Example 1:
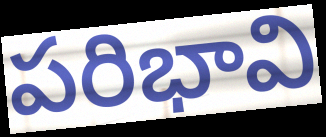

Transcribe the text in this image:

పరిభావి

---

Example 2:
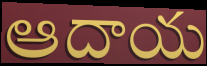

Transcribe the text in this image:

ఆదాయ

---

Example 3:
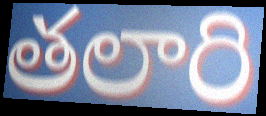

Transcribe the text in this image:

తలారి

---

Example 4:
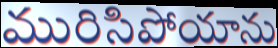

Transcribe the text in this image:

మురిసిపోయాను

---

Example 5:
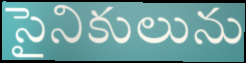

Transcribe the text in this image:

సైనికులును